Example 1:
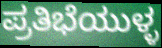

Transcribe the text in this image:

ಪ್ರತಿಭೆಯುಳ್ಳ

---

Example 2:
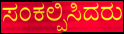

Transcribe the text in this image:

ಸಂಕಲ್ಪಿಸಿದರು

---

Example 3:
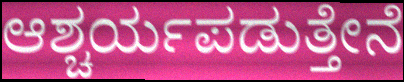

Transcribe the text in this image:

ಆಶ್ಚರ್ಯಪಡುತ್ತೇನೆ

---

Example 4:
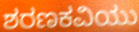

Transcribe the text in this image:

ಶರಣಕವಿಯು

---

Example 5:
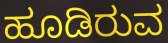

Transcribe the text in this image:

ಹೂಡಿರುವ